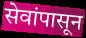
सेवांपासून